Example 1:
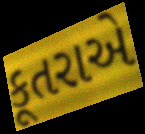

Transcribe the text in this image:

કૂતરાએ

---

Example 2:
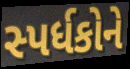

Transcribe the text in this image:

સ્પર્ધકોને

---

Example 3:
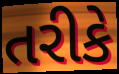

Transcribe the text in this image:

તરીકે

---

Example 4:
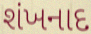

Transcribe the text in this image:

શંખનાદ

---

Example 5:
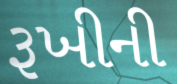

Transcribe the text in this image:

રૂખીની